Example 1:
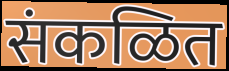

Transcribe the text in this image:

संकळित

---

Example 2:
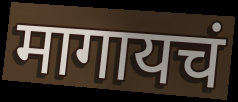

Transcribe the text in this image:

मागायचं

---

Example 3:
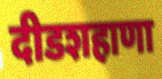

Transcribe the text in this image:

दीडशहाणा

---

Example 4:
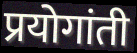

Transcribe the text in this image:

प्रयोगांती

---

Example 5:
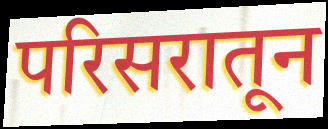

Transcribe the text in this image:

परिसरातून